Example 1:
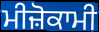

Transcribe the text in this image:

ਮੀਜ਼ੋਕਾਮੀ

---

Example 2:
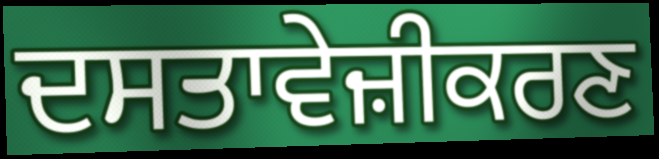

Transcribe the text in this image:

ਦਸਤਾਵੇਜ਼ੀਕਰਣ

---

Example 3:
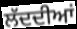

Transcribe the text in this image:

ਲੱਦਦੀਆਂ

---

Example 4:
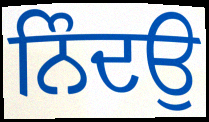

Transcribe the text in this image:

ਨਿੰਦਉ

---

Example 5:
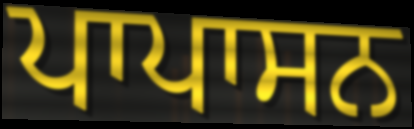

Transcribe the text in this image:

ਪਾਪਾਸਨ